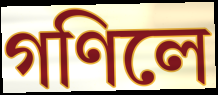
গণিলে